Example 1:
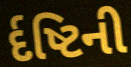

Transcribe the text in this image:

ર્દષ્ટિની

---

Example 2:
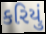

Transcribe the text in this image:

કરિયું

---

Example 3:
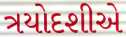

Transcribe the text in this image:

ત્રયોદશીએ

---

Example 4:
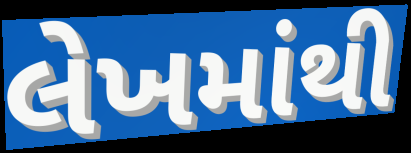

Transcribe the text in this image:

લેખમાંથી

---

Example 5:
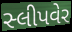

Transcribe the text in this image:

સ્લીપવેર